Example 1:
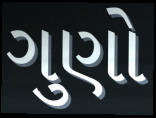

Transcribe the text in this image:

ગુણો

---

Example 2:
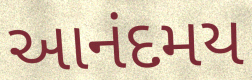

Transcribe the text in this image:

આનંદમય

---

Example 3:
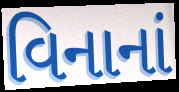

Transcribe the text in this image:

વિનાનાં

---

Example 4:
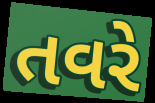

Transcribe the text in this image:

તવરે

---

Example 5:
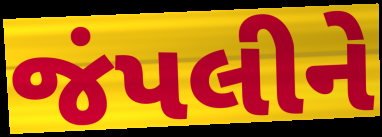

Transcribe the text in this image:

જંપલીને